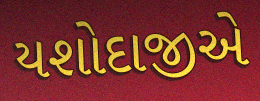
યશોદાજીએ